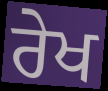
ਰੇਖ